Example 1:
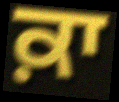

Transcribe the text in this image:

ਕ਼ਾ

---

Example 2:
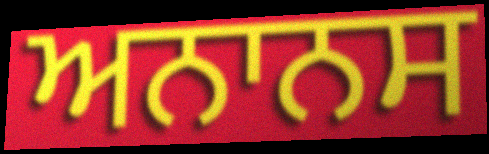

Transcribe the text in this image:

ਅਨਾਨਸ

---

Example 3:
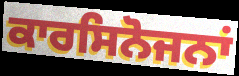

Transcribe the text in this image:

ਕਾਰਸਿਨੋਜਨਾਂ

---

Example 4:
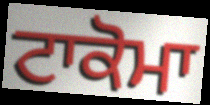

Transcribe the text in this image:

ਟਾਕੋਮਾ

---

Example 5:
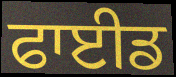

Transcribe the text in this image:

ਫਾਈਡ